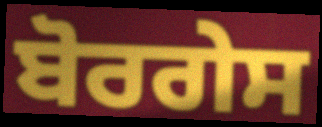
ਬੋਰਗੇਸ